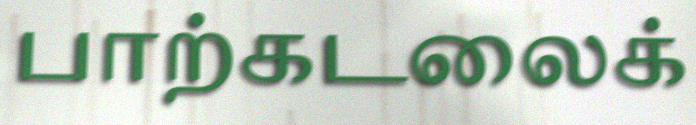
பாற்கடலைக்